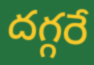
దగ్గరే